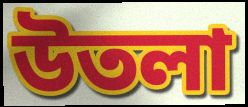
উতলা